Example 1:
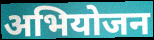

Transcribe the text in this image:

अभियोजन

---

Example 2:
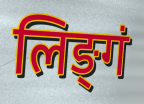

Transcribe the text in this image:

लिङ्गं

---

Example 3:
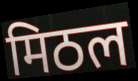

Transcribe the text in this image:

मिठल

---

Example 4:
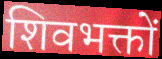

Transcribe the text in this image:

शिवभक्तों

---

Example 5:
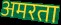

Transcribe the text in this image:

अमरता